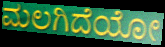
ಮಲಗಿದೆಯೋ